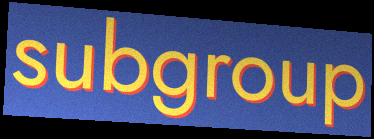
subgroup